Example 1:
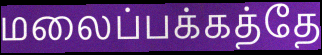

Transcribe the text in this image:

மலைப்பக்கத்தே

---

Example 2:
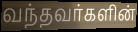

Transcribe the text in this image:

வந்தவர்களின்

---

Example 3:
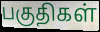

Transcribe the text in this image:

பகுதிகள்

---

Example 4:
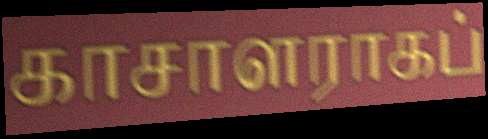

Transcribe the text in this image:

காசாளராகப்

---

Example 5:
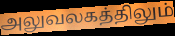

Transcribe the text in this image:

அலுவலகத்திலும்